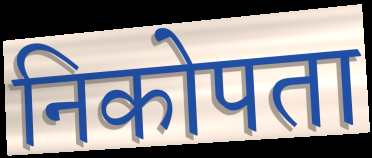
निकोपता